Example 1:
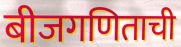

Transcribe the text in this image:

बीजगणिताची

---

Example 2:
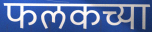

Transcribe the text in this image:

फलकच्या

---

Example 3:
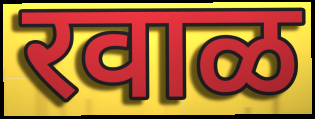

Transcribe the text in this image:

रवाळ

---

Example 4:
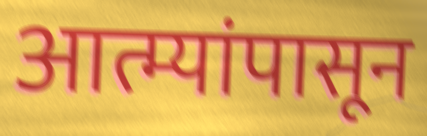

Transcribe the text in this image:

आत्म्यांपासून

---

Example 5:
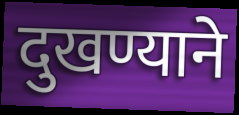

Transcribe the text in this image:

दुखण्याने